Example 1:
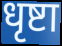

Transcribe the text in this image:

धृष्टा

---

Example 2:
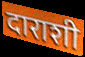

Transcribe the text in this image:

दाराशी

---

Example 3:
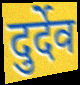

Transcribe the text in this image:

दुर्देव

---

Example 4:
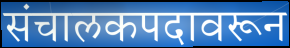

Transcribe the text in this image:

संचालकपदावरून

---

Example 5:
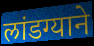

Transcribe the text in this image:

लांडग्याने